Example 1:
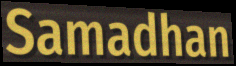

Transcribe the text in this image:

Samadhan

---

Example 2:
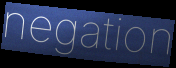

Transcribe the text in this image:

negation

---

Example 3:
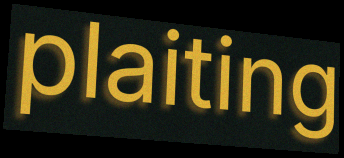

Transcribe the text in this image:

plaiting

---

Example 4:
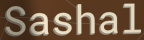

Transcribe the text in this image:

Sashal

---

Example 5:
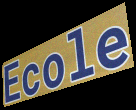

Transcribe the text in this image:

Ecole